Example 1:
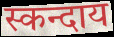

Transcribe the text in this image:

स्कन्दाय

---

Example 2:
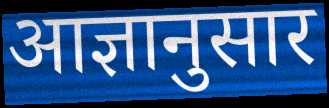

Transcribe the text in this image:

आज्ञानुसार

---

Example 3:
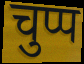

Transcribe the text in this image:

चुप्प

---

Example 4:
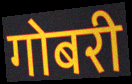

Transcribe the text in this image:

गोबरी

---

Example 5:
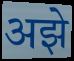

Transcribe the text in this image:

अझे